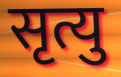
सृत्यु